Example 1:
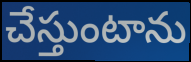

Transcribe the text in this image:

చేస్తుంటాను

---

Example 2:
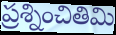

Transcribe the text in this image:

ప్రశ్నించితిమి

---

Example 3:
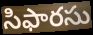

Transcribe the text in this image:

సిఫారసు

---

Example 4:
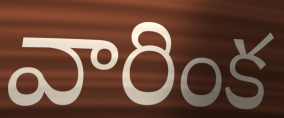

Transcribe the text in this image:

వారింక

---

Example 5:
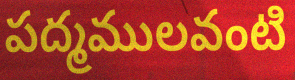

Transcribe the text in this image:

పద్మములవంటి